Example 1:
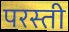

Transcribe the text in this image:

परस्ती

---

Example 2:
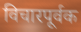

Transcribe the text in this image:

विचारपूर्वक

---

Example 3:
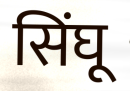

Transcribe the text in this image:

सिंघू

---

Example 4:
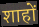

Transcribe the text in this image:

शाहों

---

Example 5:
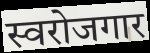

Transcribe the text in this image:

स्‍वरोजगार